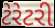
ટેરેટરી